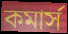
কমার্স